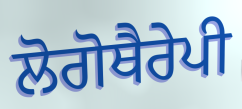
ਲੋਗੋਥੈਰੇਪੀ